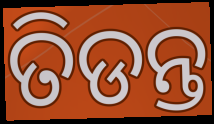
ତିଡନ୍ତ